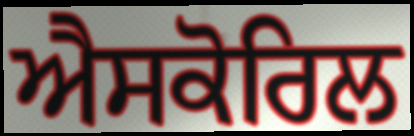
ਐਸਕੋਰਿਲ